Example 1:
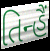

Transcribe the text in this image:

તિન્હૈં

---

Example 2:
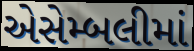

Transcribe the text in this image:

એસેમ્બલીમાં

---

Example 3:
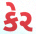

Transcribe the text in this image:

કેર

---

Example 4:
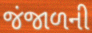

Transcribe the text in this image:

જંજાળની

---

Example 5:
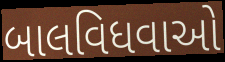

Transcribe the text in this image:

બાલવિધવાઓ